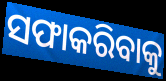
ସଫାକରିବାକୁ